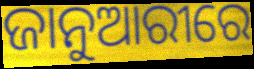
ଜାନୁଆରୀରେ